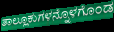
ತಾಲ್ಲೂಕುಗಳನ್ನೊಳಗೊಂಡ